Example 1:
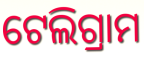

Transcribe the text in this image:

ଟେଲିଗ୍ରାମ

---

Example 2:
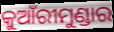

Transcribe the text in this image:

କୁଆଁରୀମୁଣ୍ଡାର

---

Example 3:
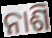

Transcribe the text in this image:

ନାଶି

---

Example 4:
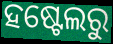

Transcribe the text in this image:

ହଷ୍ଟେଲରୁ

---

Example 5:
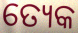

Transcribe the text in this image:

ତ୍ଯେକ